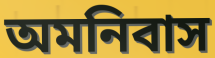
অমনিবাস